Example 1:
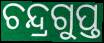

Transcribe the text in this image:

ଚନ୍ଦ୍ରଗୁପ୍ତ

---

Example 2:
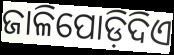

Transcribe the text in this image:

ଜାଳିପୋଡ଼ିଦିଏ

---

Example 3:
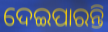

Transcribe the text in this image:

ଦେଇପାରନ୍ତି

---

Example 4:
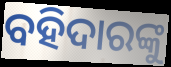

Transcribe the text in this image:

ବହିଦାରଙ୍କୁ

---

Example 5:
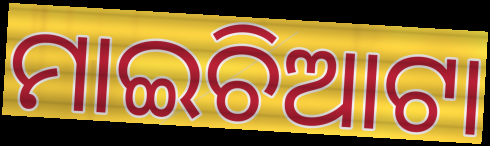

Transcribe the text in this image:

ମାଇଚିଆଟା